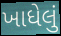
ખાધેલું